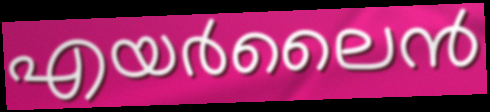
എയർലൈൻ